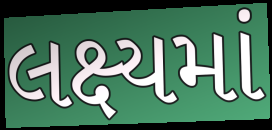
લક્ષ્યમાં